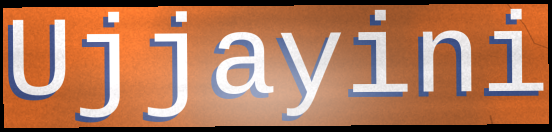
Ujjayini